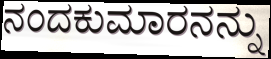
ನಂದಕುಮಾರನನ್ನು